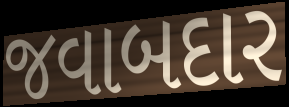
જવાબદાર